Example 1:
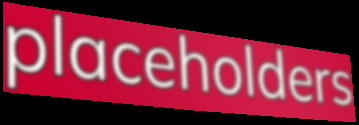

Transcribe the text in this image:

placeholders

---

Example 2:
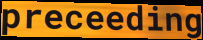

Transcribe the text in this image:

preceeding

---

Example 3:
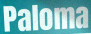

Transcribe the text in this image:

Paloma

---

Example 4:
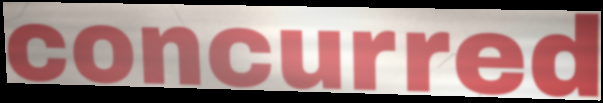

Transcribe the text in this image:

concurred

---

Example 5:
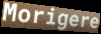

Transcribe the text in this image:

Morigere